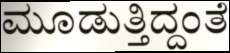
ಮೂಡುತ್ತಿದ್ದಂತೆ